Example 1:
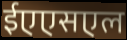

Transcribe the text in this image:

ईएएसएल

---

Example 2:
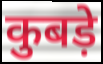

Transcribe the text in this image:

कुबड़े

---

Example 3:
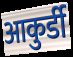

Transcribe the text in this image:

आकुर्डी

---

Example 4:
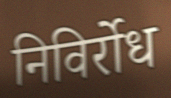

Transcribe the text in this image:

निविर्रोध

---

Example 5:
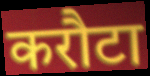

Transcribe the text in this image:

करौटा